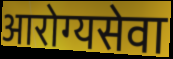
आरोग्यसेवा